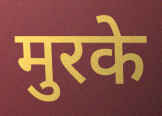
मुरके